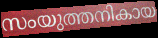
സംയുത്തനികായ